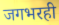
जगभरही